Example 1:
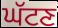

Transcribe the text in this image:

ਘੱਟਣ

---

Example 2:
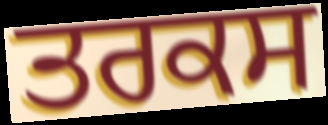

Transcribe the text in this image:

ਤਰਕਸ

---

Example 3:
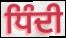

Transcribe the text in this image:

ਧਿੰਦੀ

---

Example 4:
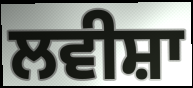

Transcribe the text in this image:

ਲਵੀਸ਼ਾ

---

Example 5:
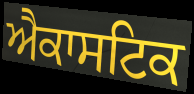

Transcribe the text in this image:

ਐਕਾਸਟਿਕ